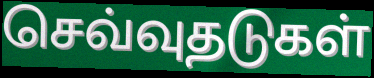
செவ்வுதடுகள்